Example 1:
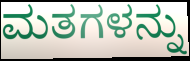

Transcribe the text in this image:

ಮತಗಳನ್ನು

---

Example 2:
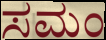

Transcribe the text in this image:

ಸಮಂ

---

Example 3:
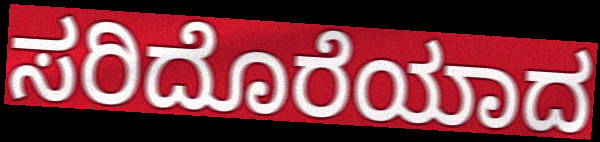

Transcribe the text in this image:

ಸರಿದೊರೆಯಾದ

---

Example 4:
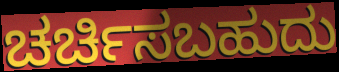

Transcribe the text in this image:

ಚರ್ಚಿಸಬಹುದು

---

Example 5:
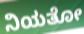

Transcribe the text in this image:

ನಿಯತೋ